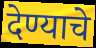
देण्याचे